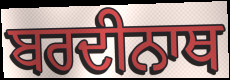
ਬਰਦੀਨਾਥ